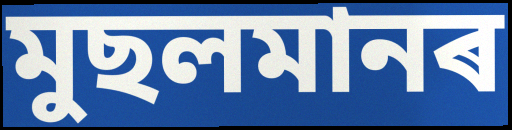
মুছলমানৰ